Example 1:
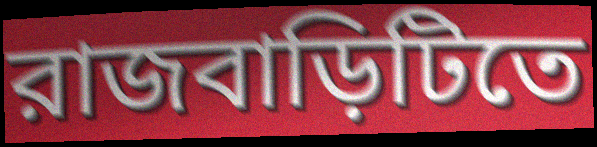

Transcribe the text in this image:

রাজবাড়িটিতে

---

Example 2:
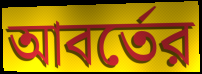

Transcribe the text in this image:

আবর্তের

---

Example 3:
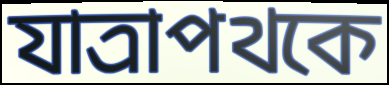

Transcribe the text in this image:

যাত্রাপথকে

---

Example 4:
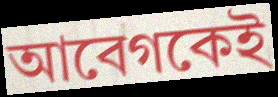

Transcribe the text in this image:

আবেগকেই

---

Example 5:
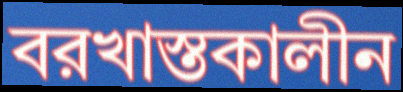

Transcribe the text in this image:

বরখাস্তকালীন